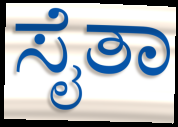
ಸೈತಾ